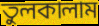
তুলকালাম